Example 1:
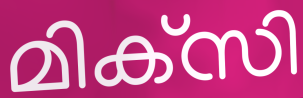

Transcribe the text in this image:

മിക്‌സി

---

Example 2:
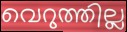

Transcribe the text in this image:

വെറുത്തില്ല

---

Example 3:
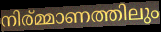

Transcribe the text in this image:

നിര്മ്മാണത്തിലും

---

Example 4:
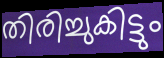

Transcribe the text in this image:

തിരിച്ചുകിട്ടും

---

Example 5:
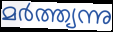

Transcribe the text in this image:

മർത്ത്യന്നു